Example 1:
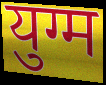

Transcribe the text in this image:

युग्म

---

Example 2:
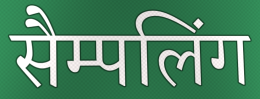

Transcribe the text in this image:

सैम्पलिंग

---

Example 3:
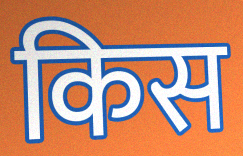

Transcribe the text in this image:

किस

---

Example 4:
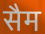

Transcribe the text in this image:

सैम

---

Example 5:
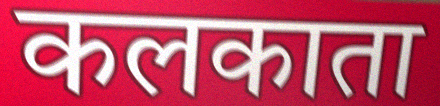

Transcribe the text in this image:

कलकाता